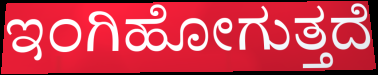
ಇಂಗಿಹೋಗುತ್ತದೆ